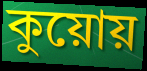
কুয়োয়